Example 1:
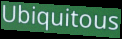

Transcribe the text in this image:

Ubiquitous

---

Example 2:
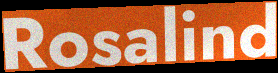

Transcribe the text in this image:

Rosalind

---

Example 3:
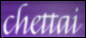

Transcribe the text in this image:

chettai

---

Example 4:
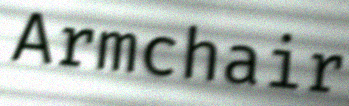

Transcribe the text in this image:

Armchair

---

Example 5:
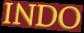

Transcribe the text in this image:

INDO